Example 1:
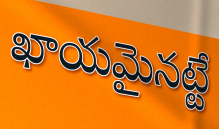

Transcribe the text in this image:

ఖాయమైనట్టే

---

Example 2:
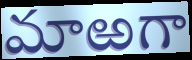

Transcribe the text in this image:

మాఱగా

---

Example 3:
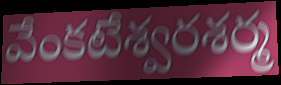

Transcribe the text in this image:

వేంకటేశ్వరశర్మ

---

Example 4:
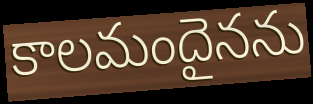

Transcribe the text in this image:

కాలమందైనను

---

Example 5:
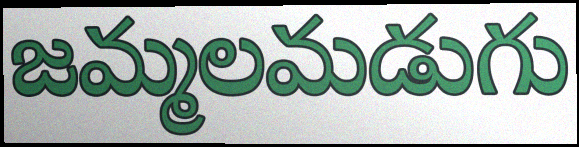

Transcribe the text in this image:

జమ్మలమడుగు